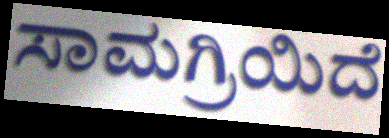
ಸಾಮಗ್ರಿಯಿದೆ